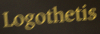
Logothetis